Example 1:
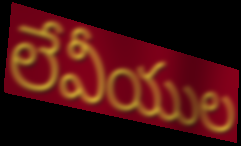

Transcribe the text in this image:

లేవీయుల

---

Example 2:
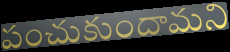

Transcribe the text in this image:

పంచుకుందామని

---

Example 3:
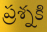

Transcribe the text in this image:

ప్రశ్నకి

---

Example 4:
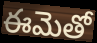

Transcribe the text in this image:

ఈమెతో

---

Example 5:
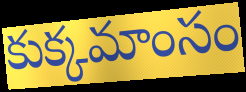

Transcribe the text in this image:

కుక్కమాంసం